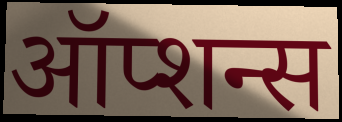
ऑप्शन्स